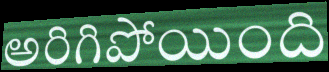
అరిగిపోయింది